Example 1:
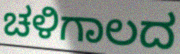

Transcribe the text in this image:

ಚಳಿಗಾಲದ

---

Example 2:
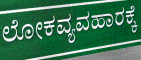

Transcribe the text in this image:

ಲೋಕವ್ಯವಹಾರಕ್ಕೆ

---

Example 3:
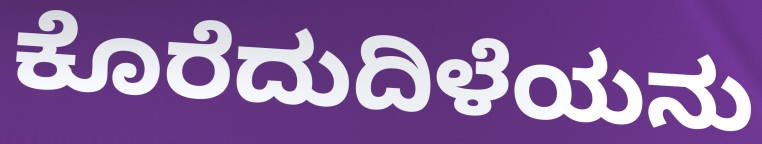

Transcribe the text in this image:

ಕೊರೆದುದಿಳೆಯನು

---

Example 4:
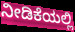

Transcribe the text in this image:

ನೀಡಿಕೆಯಲ್ಲಿ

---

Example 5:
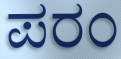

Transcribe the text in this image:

ಪರಂ